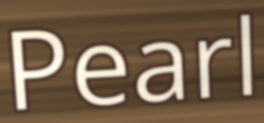
Pearl